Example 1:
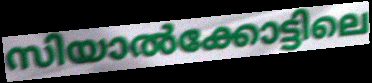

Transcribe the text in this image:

സിയാൽക്കോട്ടിലെ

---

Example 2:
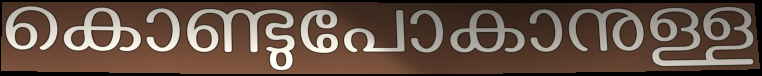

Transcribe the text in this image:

കൊണ്ടുപോകാനുള്ള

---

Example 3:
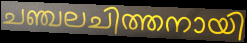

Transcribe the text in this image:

ചഞ്ചലചിത്തനായി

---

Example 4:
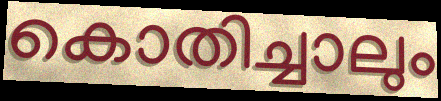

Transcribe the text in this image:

കൊതിച്ചാലും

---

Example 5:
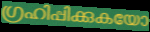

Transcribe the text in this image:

ഗ്രഹിപ്പിക്കുകയോ